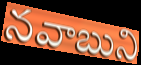
నవాబుని